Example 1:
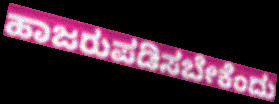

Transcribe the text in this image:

ಹಾಜರುಪಡಿಸಬೇಕೆಂದು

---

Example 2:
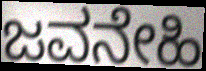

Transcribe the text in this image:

ಜವನೇಹಿ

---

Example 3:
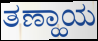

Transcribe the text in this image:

ತಣ್ಹಾಯ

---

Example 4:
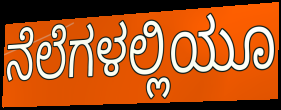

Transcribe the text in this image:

ನೆಲೆಗಳಲ್ಲಿಯೂ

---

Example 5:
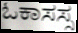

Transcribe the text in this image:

ಓಕಾಸಸ್ಸ